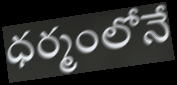
ధర్మంలోనే